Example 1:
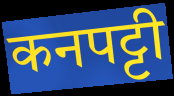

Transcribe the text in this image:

कनपट्टी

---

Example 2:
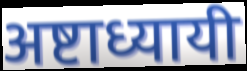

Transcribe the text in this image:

अष्टाध्यायी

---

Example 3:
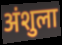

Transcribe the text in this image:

अंशुला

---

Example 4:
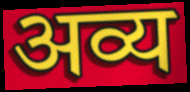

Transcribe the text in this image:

अव्य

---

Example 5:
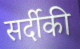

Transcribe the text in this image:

सर्दीकी